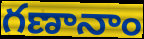
గణానాం